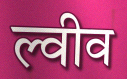
ल्वीव